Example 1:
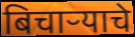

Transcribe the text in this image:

बिचाऱ्याचे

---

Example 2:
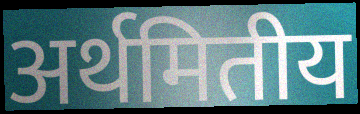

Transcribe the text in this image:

अर्थमितीय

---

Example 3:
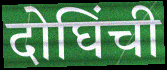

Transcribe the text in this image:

दोघिंची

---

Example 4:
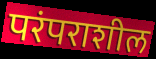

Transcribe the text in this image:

परंपराशील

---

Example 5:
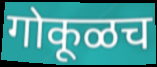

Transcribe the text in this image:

गोकूळच